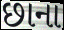
છાના